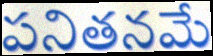
పనితనమే